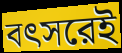
বৎসরেই